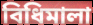
বিধিমালা